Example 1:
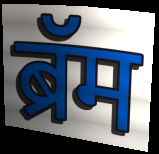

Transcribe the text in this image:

ब्रॅम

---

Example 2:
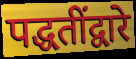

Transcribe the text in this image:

पद्धतींद्वारे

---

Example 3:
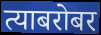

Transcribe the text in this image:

त्याबरोबर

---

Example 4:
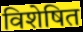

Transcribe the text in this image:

विशेषित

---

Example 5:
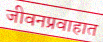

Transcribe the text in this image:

जीवनप्रवाहात